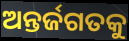
ଅନ୍ତର୍ଜଗତକୁ